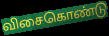
விசைகொண்டு